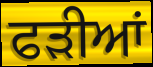
ਫੜੀਆਂ